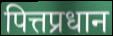
पित्तप्रधान